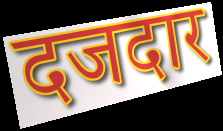
दजदार